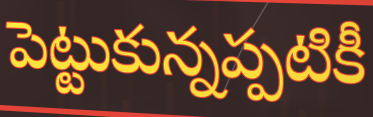
పెట్టుకున్నప్పటికీ